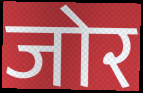
जोर